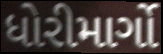
ધોરીમાર્ગો